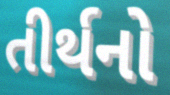
તીર્થનો